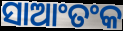
ସାଆଂତଂକ